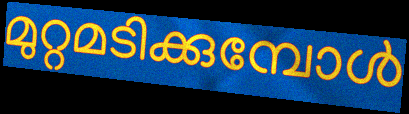
മുറ്റമടിക്കുമ്പോൾ